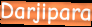
Darjipara